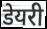
डेयरी